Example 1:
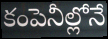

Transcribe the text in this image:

కంపెనీల్లోనే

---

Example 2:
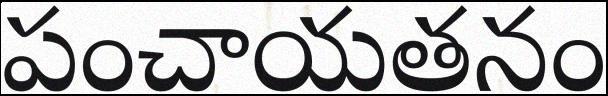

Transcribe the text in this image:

పంచాయతనం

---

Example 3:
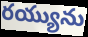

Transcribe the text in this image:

రయ్యును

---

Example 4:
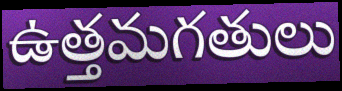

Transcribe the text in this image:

ఉత్తమగతులు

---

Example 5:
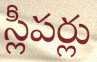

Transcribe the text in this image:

స్లీపర్లు